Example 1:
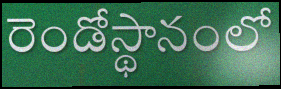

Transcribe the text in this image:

రెండోస్థానంలో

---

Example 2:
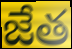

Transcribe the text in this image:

జేత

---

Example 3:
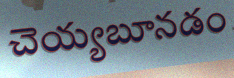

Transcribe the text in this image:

చెయ్యబూనడం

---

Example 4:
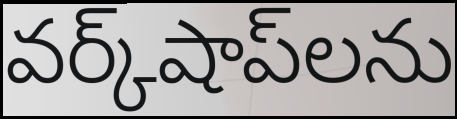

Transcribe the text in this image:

వర్క్‌షాప్‌లను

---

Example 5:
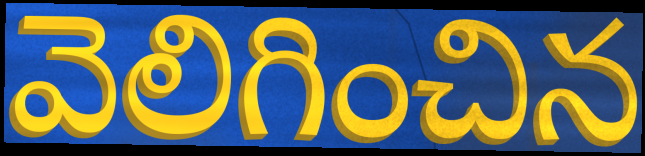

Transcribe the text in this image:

వెలిగించిన